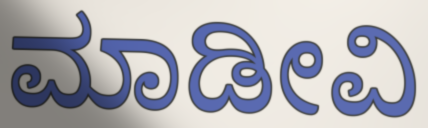
ಮಾಡೀವಿ